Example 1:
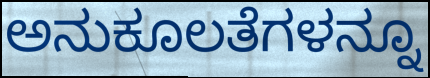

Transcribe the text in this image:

ಅನುಕೂಲತೆಗಳನ್ನೂ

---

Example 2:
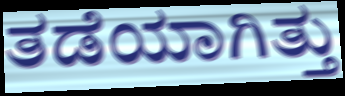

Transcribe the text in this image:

ತಡೆಯಾಗಿತ್ತು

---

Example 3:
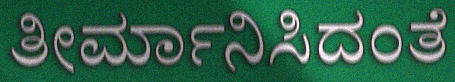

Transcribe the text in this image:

ತೀರ್ಮಾನಿಸಿದಂತೆ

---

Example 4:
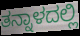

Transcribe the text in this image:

ತನ್ನಾಳದಲ್ಲಿ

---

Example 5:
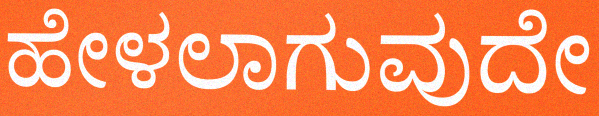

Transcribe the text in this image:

ಹೇಳಲಾಗುವುದೇ